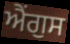
ਐਂਗੁਸ